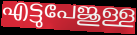
എട്ടുപേജുള്ള